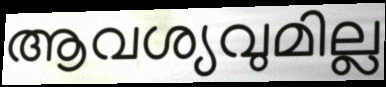
ആവശ്യവുമില്ല